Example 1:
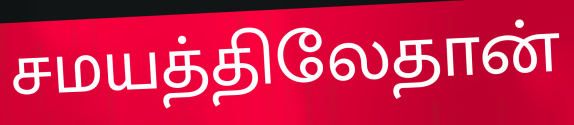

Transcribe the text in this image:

சமயத்திலேதான்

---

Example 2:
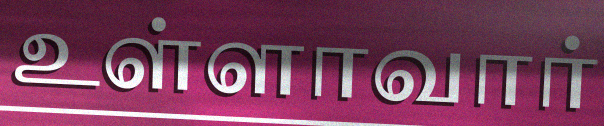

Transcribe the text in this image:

உள்ளாவார்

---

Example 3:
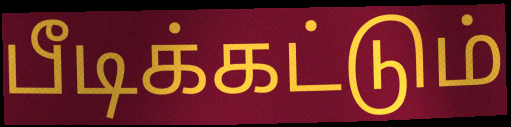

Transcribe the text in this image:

பீடிக்கட்டும்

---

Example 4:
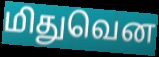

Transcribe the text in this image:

மிதுவென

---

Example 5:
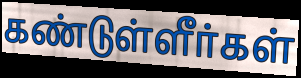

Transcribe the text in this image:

கண்டுள்ளீர்கள்